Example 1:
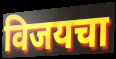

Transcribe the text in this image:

विजयचा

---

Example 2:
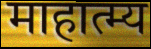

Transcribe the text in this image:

माहात्म्य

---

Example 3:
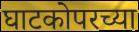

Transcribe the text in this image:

घाटकोपरच्या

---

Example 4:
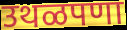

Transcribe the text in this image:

उथळपणा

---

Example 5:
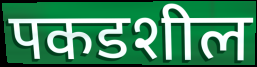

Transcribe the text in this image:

पकडशील